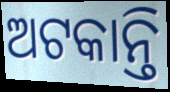
ଅଟକାନ୍ତି